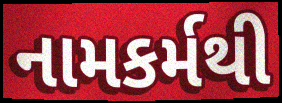
નામકર્મથી